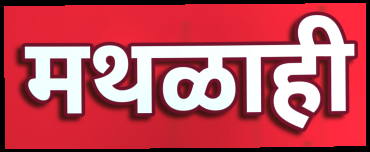
मथळाही